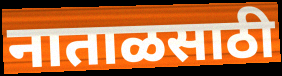
नाताळसाठी